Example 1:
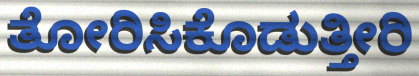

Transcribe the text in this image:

ತೋರಿಸಿಕೊಡುತ್ತೀರಿ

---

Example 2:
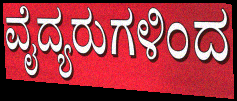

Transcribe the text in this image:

ವೈದ್ಯರುಗಳಿಂದ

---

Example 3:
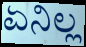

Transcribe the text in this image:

ಏನಿಲ್ಲ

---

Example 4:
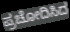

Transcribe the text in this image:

ಪ್ರಚೋದಿಸಿದ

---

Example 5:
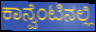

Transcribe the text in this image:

ಕಾನ್ವೆಂಟಿನಲ್ಲಿ